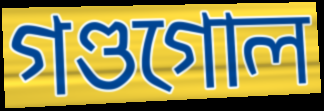
গণ্ডগোল